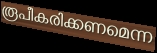
രൂപീകരിക്കണമെന്ന